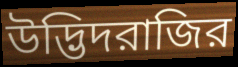
উদ্ভিদরাজির